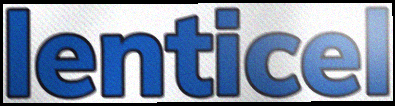
lenticel